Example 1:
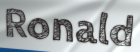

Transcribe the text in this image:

Ronald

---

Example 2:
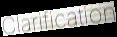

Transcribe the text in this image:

Clarification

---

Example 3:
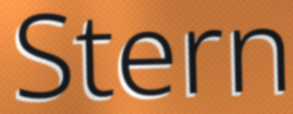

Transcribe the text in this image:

Stern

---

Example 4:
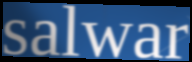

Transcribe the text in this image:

salwar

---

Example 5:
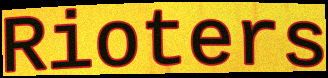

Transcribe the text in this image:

Rioters